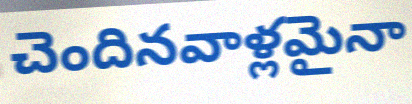
చెందినవాళ్లమైనా